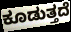
ಕೂಡುತ್ತದೆ